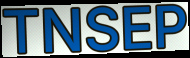
TNSEP